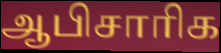
ஆபிசாரிக